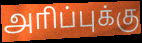
அரிப்புக்கு